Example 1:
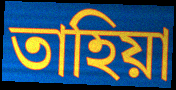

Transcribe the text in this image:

তাহিয়া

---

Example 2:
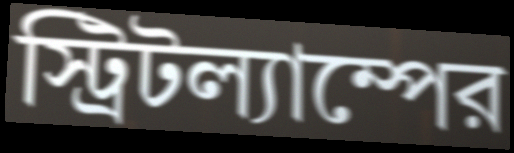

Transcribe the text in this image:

স্ট্রিটল্যাম্পের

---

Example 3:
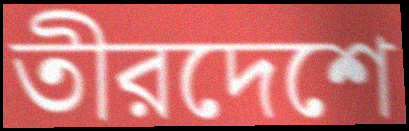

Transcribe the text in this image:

তীরদেশে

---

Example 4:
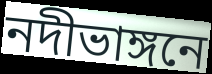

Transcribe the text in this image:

নদীভাঙ্গনে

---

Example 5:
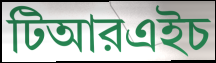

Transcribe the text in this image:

টিআরএইচ